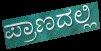
ಪ್ರಾಣದಲ್ಲಿ